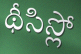
థీసిస్లో